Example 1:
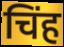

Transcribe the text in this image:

चिंह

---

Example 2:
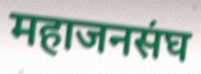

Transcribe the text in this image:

महाजनसंघ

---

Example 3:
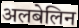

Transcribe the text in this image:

अलबेलिन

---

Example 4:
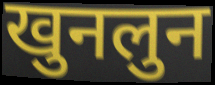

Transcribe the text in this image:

खुनलुन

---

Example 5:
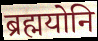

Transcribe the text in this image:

ब्रह्मयोनि